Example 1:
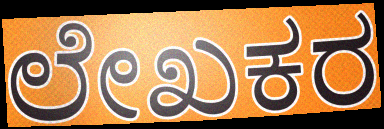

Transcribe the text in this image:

ಲೇಖಕರ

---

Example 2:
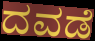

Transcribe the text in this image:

ದವಡೆ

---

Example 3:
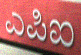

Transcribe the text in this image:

ಎಪಿಐ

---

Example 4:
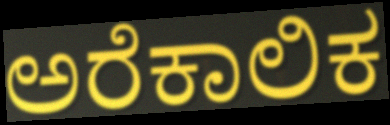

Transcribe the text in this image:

ಅರೆಕಾಲಿಕ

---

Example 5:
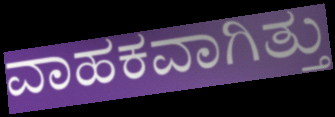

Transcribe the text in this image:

ವಾಹಕವಾಗಿತ್ತು